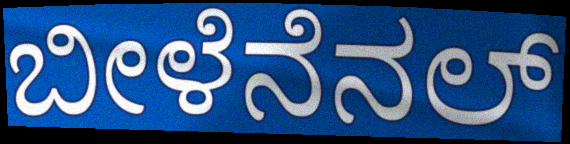
ಬೀಳೆನೆನಲ್